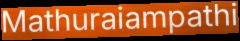
Mathuraiampathi